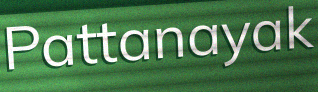
Pattanayak